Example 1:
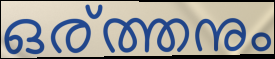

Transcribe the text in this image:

ഒര്ത്തനും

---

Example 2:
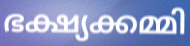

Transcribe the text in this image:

ഭക്ഷ്യക്കമ്മി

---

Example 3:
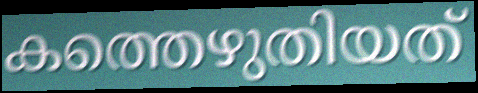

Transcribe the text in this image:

കത്തെഴുതിയത്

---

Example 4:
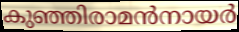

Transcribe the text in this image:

കുഞ്ഞിരാമൻനായർ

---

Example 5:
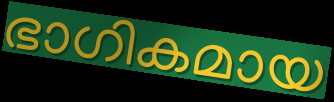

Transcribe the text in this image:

ഭാഗികമായ